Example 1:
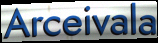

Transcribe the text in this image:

Arceivala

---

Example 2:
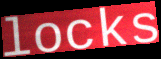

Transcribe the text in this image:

locks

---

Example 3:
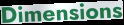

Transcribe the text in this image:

Dimensions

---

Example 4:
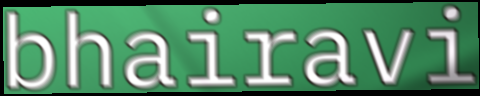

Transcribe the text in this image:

bhairavi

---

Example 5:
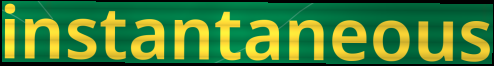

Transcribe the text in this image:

instantaneous